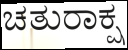
ಚತುರಾಕ್ಷ